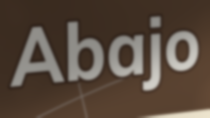
Abajo